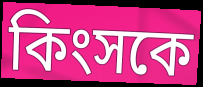
কিংসকে